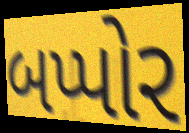
બપ્પોર